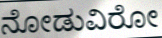
ನೋಡುವಿರೋ